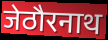
जेठौरनाथ